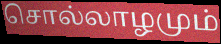
சொல்லாழமும்